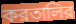
করতালির